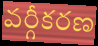
వర్గీకరణ